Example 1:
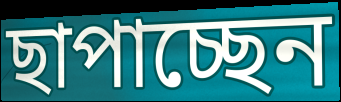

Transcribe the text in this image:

ছাপাচ্ছেন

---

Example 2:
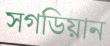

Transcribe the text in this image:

সগডিয়ান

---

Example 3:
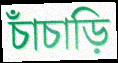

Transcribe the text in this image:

চাঁচাড়ি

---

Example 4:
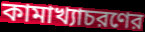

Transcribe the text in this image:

কামাখ্যাচরণের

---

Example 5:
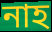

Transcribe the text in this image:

নাহ